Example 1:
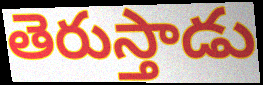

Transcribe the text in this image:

తెరుస్తాడు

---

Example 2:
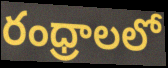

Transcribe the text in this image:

రంధ్రాలలో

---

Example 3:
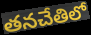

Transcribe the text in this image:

తనచేతిలో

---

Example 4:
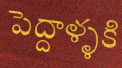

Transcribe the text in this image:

పెద్దాళ్ళకి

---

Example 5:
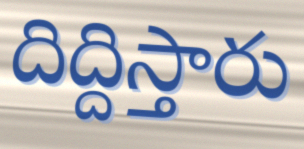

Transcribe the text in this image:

దిద్దిస్తారు